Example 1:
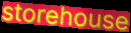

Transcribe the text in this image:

storehouse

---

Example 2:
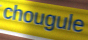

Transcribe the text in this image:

chougule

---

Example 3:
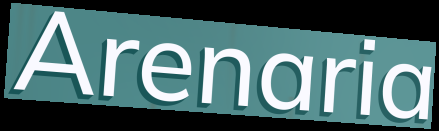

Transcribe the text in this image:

Arenaria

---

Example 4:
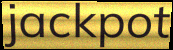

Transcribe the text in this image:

jackpot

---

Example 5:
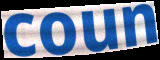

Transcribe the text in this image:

coun